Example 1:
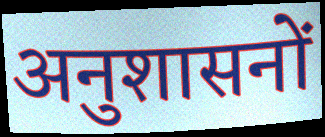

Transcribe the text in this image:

अनुशासनों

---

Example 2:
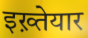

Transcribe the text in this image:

इख़्तेयार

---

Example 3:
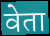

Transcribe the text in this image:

वेता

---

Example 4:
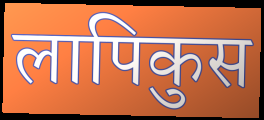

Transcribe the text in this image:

लापिकुस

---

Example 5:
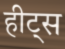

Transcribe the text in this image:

हीट्स